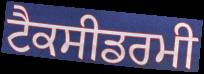
ਟੈਕਸੀਡਰਮੀ